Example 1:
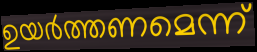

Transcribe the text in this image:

ഉയർത്തണമെന്ന്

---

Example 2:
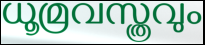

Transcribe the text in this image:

ധൂമ്രവസ്ത്രവും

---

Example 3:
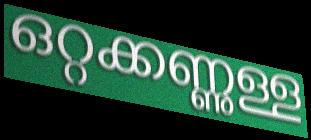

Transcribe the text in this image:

ഒറ്റക്കണ്ണുള്ള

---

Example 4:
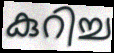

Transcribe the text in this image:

കുറിച്ച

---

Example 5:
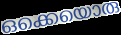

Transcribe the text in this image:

ഒക്കെയൊരു